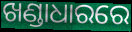
ଖଣ୍ଡାଧାରରେ